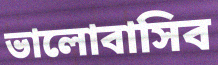
ভালোবাসিব